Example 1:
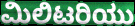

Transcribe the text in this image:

ಮಿಲಿಟರಿಯು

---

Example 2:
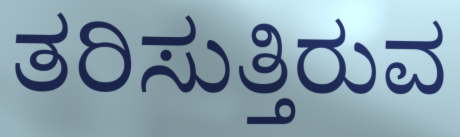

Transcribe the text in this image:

ತರಿಸುತ್ತಿರುವ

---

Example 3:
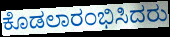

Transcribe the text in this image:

ಕೊಡಲಾರಂಭಿಸಿದರು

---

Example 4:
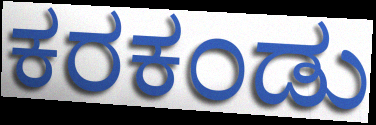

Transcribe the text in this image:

ಕರಕಂಡು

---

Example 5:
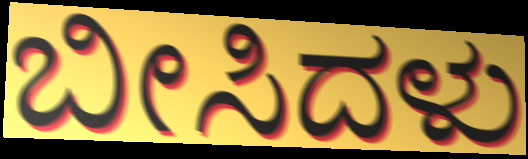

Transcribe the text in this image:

ಬೀಸಿದಳು